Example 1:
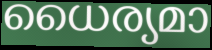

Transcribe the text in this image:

ധൈര്യമാ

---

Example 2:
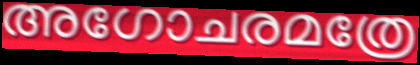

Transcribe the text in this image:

അഗോചരമത്രേ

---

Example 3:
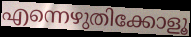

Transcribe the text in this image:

എന്നെഴുതിക്കോളൂ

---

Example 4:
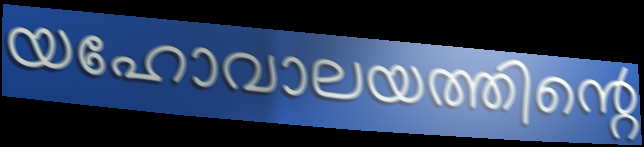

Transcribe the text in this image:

യഹോവാലയത്തിന്റെ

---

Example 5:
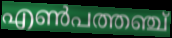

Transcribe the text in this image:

എൺപത്തഞ്ച്